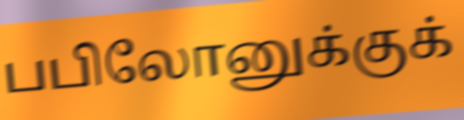
பபிலோனுக்குக்